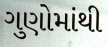
ગુણોમાંથી